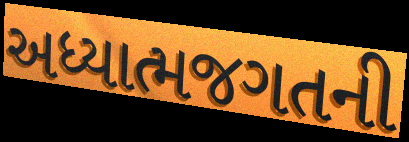
અધ્યાત્મજગતની